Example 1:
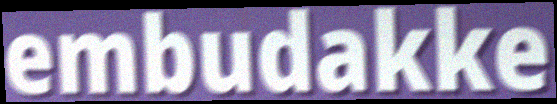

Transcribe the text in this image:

embudakke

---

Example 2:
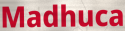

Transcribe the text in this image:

Madhuca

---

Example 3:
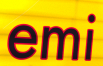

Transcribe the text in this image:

emi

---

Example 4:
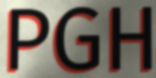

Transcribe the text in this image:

PGH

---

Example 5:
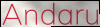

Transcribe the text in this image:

Andaru